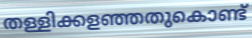
തള്ളിക്കളഞ്ഞതുകൊണ്ട്